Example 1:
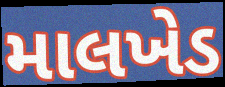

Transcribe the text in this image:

માલખેડ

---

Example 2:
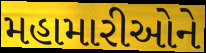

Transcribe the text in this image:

મહામારીઓને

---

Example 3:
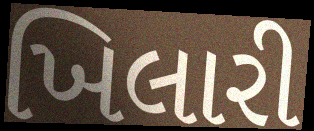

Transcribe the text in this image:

ખિલારી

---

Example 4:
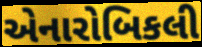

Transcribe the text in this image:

એનારોબિકલી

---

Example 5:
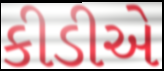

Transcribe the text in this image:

કીડીએ